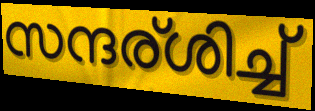
സന്ദര്ശിച്ച്